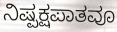
ನಿಷ್ಪಕ್ಷಪಾತವೂ